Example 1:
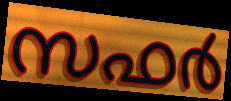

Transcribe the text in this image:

സഫർ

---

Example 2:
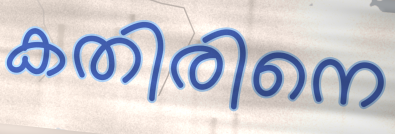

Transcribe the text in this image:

കതിരിനെ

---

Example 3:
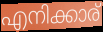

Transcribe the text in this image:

എനിക്കാര്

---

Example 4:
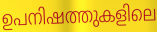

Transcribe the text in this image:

ഉപനിഷത്തുകളിലെ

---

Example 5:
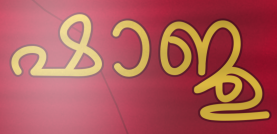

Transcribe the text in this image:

ഷാജു